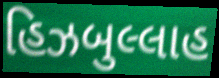
હિઝબુલ્લાહ